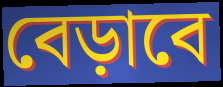
বেড়াবে